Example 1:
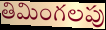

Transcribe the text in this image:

తిమింగలపు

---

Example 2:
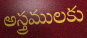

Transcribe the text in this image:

అస్త్రములకు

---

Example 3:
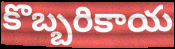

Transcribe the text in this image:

కొబ్బరికాయ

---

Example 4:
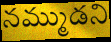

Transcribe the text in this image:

నమ్ముడని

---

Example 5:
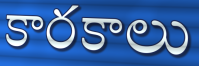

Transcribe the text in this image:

కారకాలు